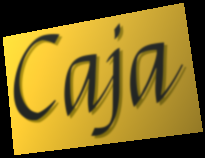
Caja